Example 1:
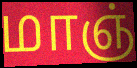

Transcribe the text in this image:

மாஞ்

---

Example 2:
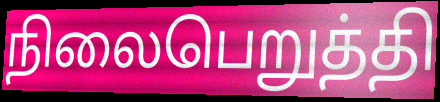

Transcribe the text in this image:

நிலைபெறுத்தி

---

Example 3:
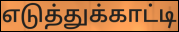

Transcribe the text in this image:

எடுத்துக்காட்டி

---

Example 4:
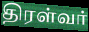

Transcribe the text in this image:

திரள்வர்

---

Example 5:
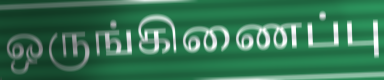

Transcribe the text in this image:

ஒருங்கிணைப்பு